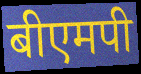
बीएमपी